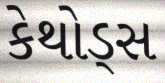
કેથોડ્સ